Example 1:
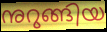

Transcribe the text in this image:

നുറുങ്ങിയ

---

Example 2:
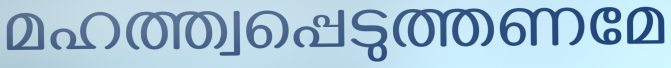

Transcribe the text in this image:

മഹത്ത്വപ്പെടുത്തണമേ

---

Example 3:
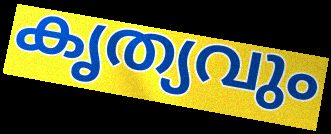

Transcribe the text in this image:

കൃത്യവും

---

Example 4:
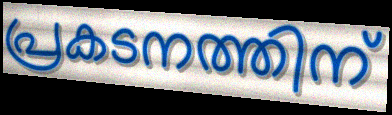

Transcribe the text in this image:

പ്രകടനത്തിന്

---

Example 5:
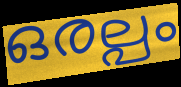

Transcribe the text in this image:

ഒരല്പം